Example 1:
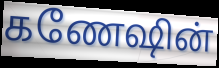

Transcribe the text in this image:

கணேஷின்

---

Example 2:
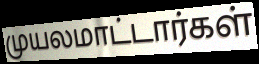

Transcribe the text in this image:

முயலமாட்டார்கள்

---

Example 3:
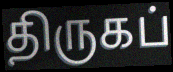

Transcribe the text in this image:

திருகப்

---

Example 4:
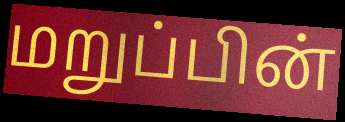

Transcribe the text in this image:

மறுப்பின்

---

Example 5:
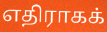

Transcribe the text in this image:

எதிராகக்